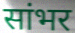
सांभर